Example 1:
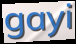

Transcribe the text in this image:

gayi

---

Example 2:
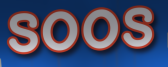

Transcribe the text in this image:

soos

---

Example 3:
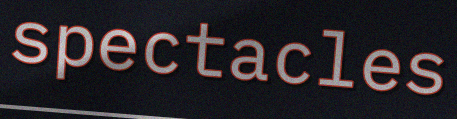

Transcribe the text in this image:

spectacles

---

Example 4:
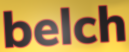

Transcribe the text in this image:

belch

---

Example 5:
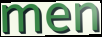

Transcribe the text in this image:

men